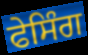
ਫੇਸਿੰਗ